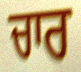
ਚਾਰ